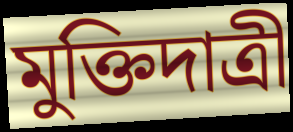
মুক্তিদাত্রী